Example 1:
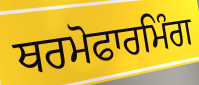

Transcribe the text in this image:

ਥਰਮੋਫਾਰਮਿੰਗ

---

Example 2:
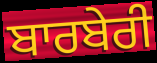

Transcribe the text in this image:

ਬਾਰਬੇਰੀ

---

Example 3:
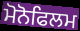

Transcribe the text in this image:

ਮੋਨੋਫਿਲਮ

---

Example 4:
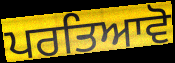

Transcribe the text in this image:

ਪਰਤਿਆਵੋ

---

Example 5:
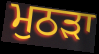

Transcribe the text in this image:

ਮੁਠੜਾ